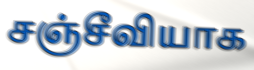
சஞ்சீவியாக